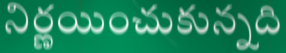
నిర్ణయించుకున్నది